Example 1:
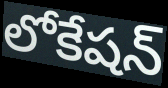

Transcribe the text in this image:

లోకేషన్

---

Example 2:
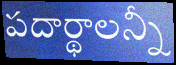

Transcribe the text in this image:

పదార్థాలన్నీ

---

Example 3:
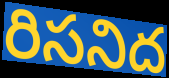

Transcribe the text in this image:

రిసనిద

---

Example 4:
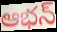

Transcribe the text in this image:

ఆభన్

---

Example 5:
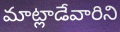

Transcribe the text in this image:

మాట్లాడేవారిని